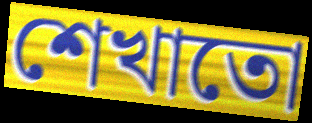
শেখাতো